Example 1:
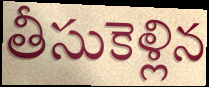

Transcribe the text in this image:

తీసుకెళ్లిన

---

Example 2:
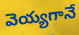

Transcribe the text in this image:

వెయ్యగానే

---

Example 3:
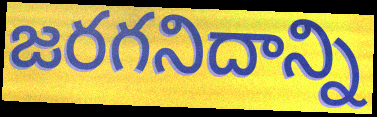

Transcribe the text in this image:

జరగనిదాన్ని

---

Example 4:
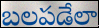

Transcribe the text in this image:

బలపడేలా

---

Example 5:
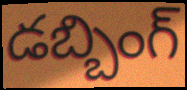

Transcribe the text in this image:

డబ్బింగ్